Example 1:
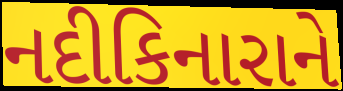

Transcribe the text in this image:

નદીકિનારાને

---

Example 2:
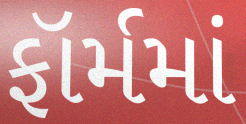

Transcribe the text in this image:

ફૉર્મમાં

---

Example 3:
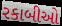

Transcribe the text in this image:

રકાબીઓ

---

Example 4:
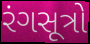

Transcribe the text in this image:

રંગસૂત્રો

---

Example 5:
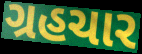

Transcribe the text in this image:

ગ્રહચાર